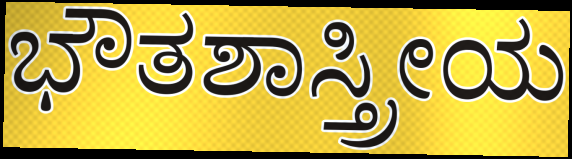
ಭೌತಶಾಸ್ತ್ರೀಯ